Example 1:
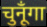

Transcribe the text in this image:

चुनूँगा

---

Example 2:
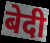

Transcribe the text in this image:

बेदी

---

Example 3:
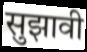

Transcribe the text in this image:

सुझावी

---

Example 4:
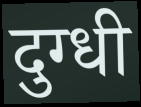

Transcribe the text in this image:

दुग्धी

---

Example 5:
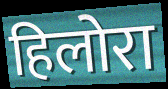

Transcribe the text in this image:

हिलोरा